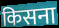
किसना